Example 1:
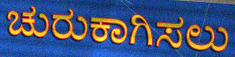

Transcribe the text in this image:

ಚುರುಕಾಗಿಸಲು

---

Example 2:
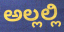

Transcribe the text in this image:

ಅಲ್ಲಲ್ಲಿ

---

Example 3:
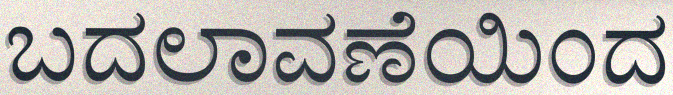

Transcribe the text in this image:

ಬದಲಾವಣೆಯಿಂದ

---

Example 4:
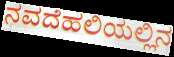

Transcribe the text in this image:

ನವದೆಹಲಿಯಲ್ಲಿನ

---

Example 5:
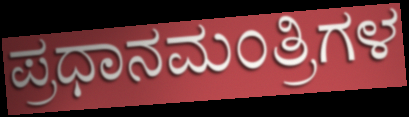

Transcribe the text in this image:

ಪ್ರಧಾನಮಂತ್ರಿಗಳ